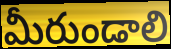
మీరుండాలి